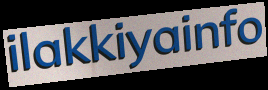
ilakkiyainfo